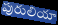
పురులియా